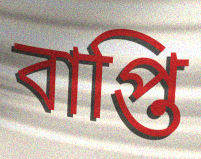
বাপ্তি